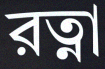
রত্না